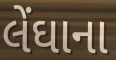
લેંઘાના